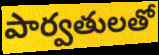
పార్వతులతో